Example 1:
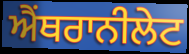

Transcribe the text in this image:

ਐਂਥਰਾਨੀਲੇਟ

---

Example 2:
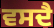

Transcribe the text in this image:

ਵਸਦੈ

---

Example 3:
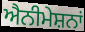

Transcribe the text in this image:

ਐਨੀਮੇਸ਼ਨਾਂ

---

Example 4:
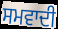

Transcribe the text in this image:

ਸਮਵਾਦੀ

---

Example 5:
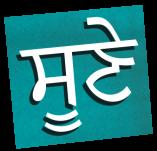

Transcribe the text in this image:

ਸੂਣੇ